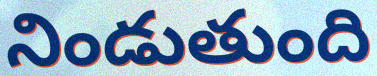
నిండుతుంది